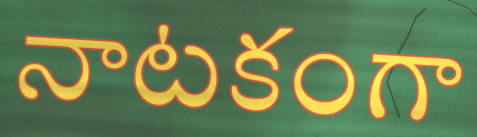
నాటకంగా